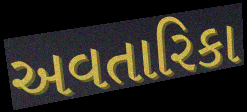
અવતારિકા